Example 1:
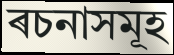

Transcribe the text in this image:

ৰচনাসমূহ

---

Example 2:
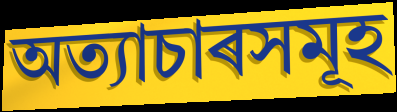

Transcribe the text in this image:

অত্যাচাৰসমূহ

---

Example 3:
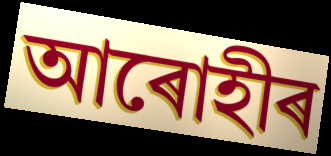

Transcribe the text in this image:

আৰোহীৰ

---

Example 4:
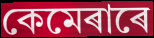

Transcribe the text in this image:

কেমেৰাৰে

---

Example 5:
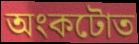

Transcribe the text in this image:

অংকটোত